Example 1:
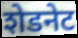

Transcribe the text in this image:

शेडनेट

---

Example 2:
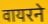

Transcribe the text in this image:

वायरने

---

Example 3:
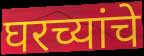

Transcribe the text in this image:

घरच्यांचे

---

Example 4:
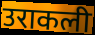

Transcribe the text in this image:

उराकली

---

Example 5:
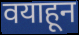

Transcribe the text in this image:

वयाहून